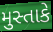
મુસ્તાકે